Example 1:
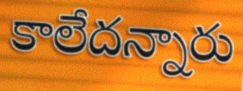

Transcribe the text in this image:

కాలేదన్నారు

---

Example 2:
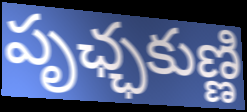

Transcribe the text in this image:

పృఛ్ఛకుణ్ణి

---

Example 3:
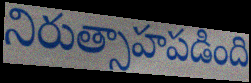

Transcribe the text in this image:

నిరుత్సాహపడింది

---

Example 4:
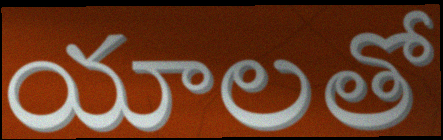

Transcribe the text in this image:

యాలతో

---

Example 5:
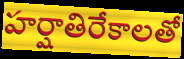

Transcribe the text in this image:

హర్షాతిరేకాలతో